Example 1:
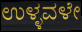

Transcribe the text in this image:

ಉಳ್ಳವಳೇ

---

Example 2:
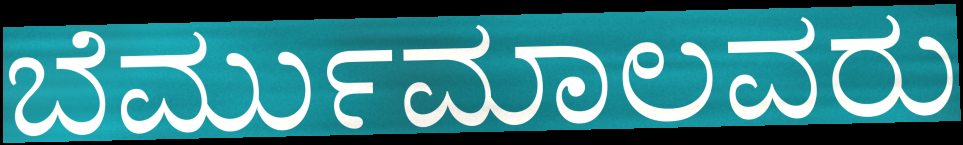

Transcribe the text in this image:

ಬೆರ್ಮುಮಾಲವರು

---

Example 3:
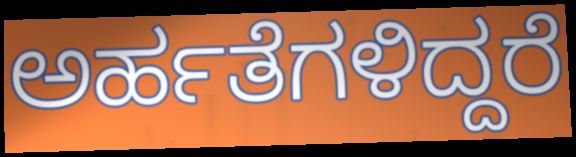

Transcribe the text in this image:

ಅರ್ಹತೆಗಳಿದ್ದರೆ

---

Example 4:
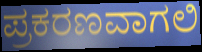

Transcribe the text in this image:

ಪ್ರಕರಣವಾಗಲಿ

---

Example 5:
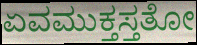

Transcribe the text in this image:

ಏವಮುಕ್ತಸ್ತತೋ